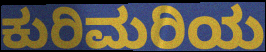
ಕುರಿಮರಿಯ